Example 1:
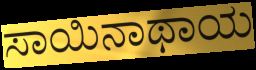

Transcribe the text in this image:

ಸಾಯಿನಾಥಾಯ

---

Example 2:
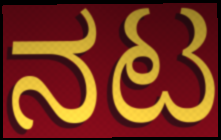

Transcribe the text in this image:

ನಟ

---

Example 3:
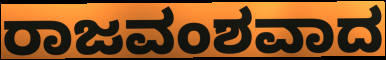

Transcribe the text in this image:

ರಾಜವಂಶವಾದ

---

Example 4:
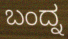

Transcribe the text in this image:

ಬಂದ್ನ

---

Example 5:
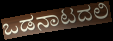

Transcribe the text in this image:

ಒಡನಾಟದಲಿ